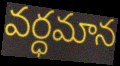
వర్ధమాన